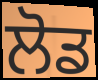
ਲੋਡ